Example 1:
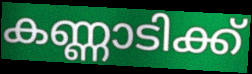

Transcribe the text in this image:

കണ്ണാടിക്ക്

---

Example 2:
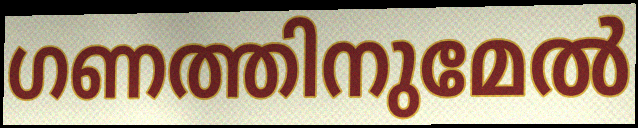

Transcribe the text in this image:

ഗണത്തിനുമേൽ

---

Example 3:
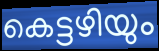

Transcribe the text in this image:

കെട്ടഴിയും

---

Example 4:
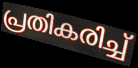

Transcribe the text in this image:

പ്രതികരിച്ച്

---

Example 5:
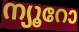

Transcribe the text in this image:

ന്യൂറോ